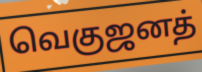
வெகுஜனத்